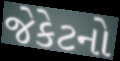
જેકેટનો